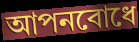
আপনবোধে